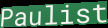
Paulist